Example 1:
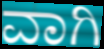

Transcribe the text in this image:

ವಾಗಿ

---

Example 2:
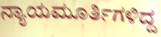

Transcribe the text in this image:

ನ್ಯಾಯಮೂರ್ತಿಗಳಿದ್ದ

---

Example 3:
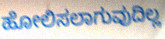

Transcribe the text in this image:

ಹೋಲಿಸಲಾಗುವುದಿಲ್ಲ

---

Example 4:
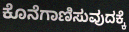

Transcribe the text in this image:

ಕೊನೆಗಾಣಿಸುವುದಕ್ಕೆ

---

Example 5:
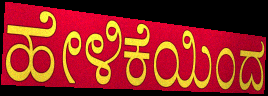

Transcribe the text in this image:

ಹೇಳಿಕೆಯಿಂದ